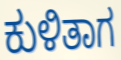
ಕುಳಿತಾಗ